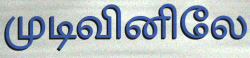
முடிவினிலே